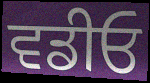
ਵਡੀਓ